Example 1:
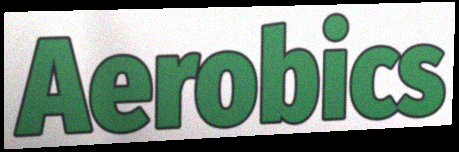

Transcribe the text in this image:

Aerobics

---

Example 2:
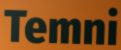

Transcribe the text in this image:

Temni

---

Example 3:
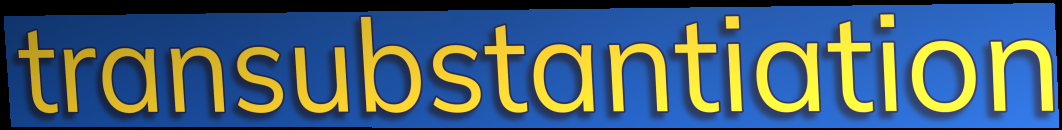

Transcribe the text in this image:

transubstantiation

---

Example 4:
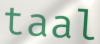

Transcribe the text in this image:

taal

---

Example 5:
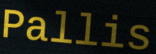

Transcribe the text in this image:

Pallis